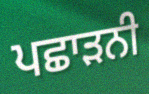
ਪਛਾੜਨੀ